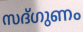
സദ്ഗുണം